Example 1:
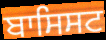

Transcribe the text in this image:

ਬਾਸਿਸਟ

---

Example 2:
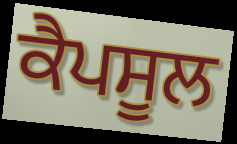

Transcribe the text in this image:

ਕੈਪਸੂਲ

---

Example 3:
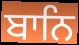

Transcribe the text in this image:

ਬਾਨਿ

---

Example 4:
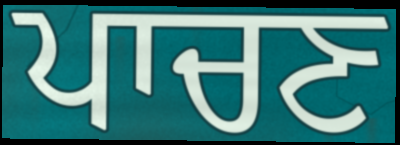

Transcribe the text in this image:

ਪਾਚਣ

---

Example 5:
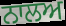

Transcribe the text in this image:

ਨਾਲਅ